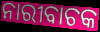
ନାରୀବାଚକ